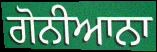
ਗੋਨੀਆਨਾ